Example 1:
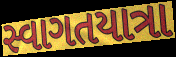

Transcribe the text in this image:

સ્વાગતયાત્રા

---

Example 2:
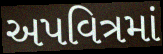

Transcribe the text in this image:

અપવિત્રમાં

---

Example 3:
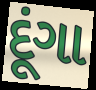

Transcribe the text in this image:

દૂંગા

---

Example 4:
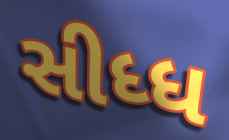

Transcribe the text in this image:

સીધ્ધ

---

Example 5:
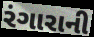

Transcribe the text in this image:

રંગારાની